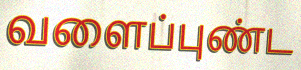
வளைப்புண்ட